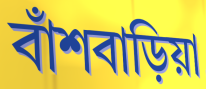
বাঁশবাড়িয়া